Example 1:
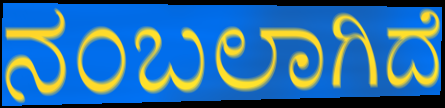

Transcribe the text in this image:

ನಂಬಲಾಗಿದೆ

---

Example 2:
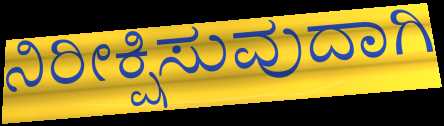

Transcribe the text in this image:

ನಿರೀಕ್ಷಿಸುವುದಾಗಿ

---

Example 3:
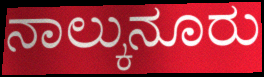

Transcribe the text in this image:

ನಾಲ್ಕುನೂರು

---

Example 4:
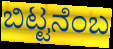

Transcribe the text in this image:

ಬಿಟ್ಟನೆಂಬ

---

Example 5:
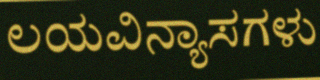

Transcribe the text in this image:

ಲಯವಿನ್ಯಾಸಗಳು